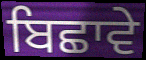
ਬਿਛਾਵੇ